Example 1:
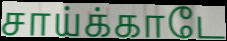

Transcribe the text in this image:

சாய்க்காடே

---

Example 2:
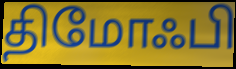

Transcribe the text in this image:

திமோஃபி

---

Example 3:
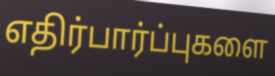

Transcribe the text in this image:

எதிர்பார்ப்புகளை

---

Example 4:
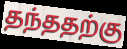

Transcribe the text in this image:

தந்ததற்கு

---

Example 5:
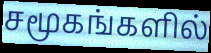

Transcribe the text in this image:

சமூகங்களில்